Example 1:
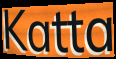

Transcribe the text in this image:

Katta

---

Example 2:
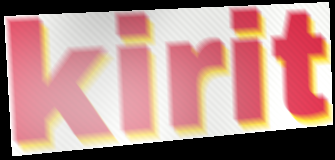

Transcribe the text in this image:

kirit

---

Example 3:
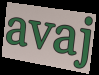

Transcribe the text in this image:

avaj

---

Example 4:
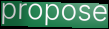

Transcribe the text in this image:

propose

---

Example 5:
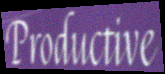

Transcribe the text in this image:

Productive